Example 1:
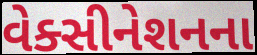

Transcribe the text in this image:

વેક્સીનેશનના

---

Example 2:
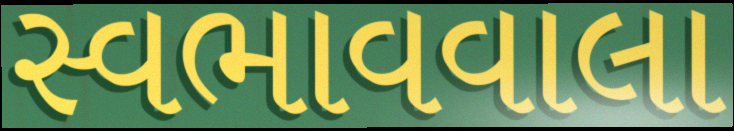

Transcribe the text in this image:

સ્વભાવવાલા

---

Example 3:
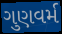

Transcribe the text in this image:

ગુણવર્મ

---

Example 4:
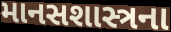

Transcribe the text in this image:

માનસશાસ્ત્રના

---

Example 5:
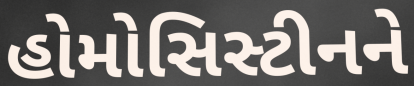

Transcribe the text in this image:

હોમોસિસ્ટીનને